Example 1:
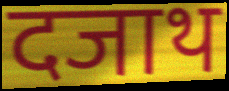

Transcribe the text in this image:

दजाथ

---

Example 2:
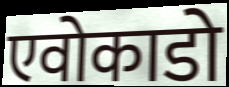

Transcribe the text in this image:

एवोकाडो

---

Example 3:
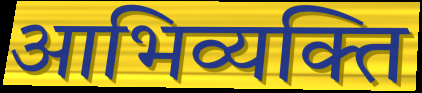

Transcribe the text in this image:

आभिव्यक्ति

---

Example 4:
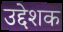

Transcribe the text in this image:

उद्देशक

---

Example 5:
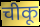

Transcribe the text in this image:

चीकू